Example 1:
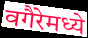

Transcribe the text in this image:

वगैरेमध्ये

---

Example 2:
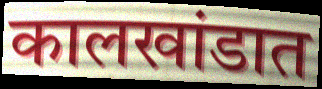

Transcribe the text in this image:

कालखांडात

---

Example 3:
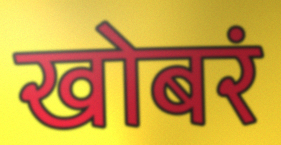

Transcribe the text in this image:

खोबरं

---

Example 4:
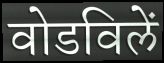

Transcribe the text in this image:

वोडविलें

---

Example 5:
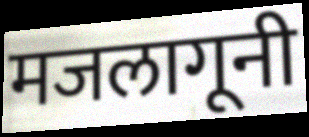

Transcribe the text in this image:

मजलागूनी